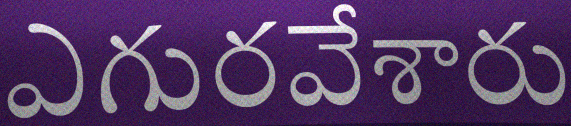
ఎగురవేశారు